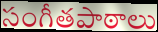
సంగీతపాఠాలు